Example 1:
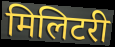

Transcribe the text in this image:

मिलिटरी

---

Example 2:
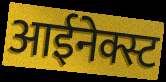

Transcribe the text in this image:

आईनेक्स्ट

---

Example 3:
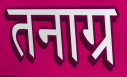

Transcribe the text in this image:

तनाग्र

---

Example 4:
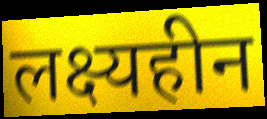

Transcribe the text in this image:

लक्ष्यहीन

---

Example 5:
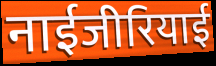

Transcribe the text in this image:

नाईजीरियाई